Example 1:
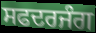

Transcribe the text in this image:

ਸਫਦਰਜੰਗ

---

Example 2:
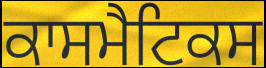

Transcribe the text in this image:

ਕਾਸਮੈਟਿਕਸ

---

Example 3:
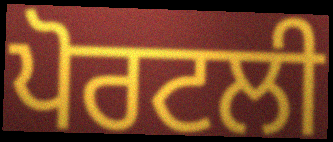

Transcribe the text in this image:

ਪੋਰਟਲੀ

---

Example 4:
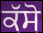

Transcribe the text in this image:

ਕੱਸੋ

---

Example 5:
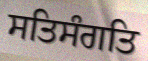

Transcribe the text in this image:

ਸਤਿਸੰਗਤਿ